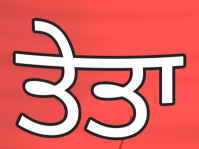
ਤੇਤਾ